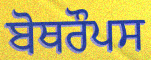
ਬੋਥਰੌਪਸ